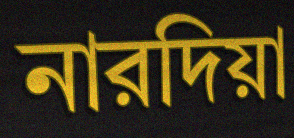
নারদিয়া